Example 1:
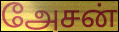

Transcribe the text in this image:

அேசன்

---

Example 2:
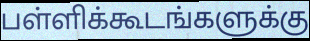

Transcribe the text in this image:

பள்ளிக்கூடங்களுக்கு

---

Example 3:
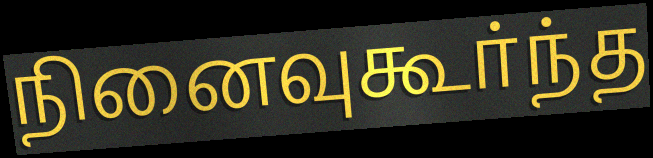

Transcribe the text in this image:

நினைவுகூர்ந்த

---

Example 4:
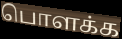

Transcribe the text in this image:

பொளக்க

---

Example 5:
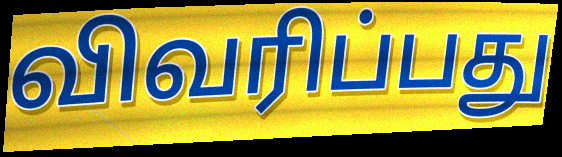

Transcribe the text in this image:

விவரிப்பது